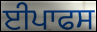
ਈਪਾਫਸ